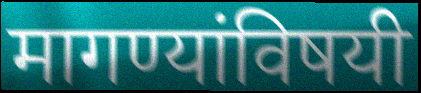
मागण्यांविषयी